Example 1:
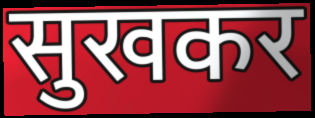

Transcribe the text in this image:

सुखकर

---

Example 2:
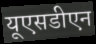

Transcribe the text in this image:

यूएसडीएन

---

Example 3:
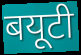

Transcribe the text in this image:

बयूटी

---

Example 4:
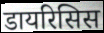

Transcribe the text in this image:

डायरिसिस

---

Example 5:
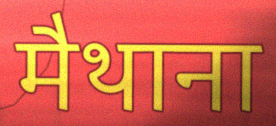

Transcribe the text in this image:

मैथाना